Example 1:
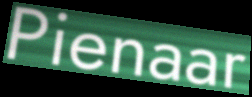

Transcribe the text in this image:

Pienaar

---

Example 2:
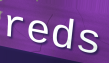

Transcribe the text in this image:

reds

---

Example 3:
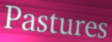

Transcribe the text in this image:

Pastures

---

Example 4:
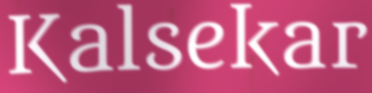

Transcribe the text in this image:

Kalsekar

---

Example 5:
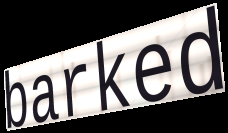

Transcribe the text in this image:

barked